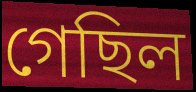
গেছিল